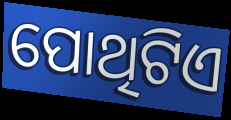
ପୋଥିଟିଏ